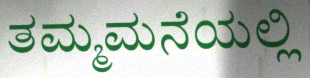
ತಮ್ಮಮನೆಯಲ್ಲಿ